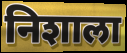
निशाला